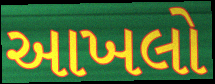
આખલો